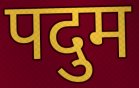
पदुम